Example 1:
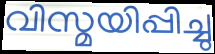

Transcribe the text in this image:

വിസ്മയിപ്പിച്ചു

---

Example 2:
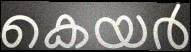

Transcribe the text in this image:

കെയർ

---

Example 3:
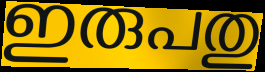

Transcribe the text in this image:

ഇരുപതു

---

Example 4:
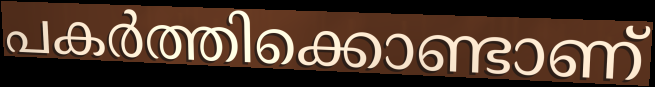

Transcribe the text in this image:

പകർത്തിക്കൊണ്ടാണ്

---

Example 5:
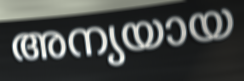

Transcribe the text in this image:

അന്യയായ